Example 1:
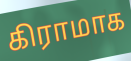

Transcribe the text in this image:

கிராமாக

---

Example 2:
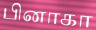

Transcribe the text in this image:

பினாகா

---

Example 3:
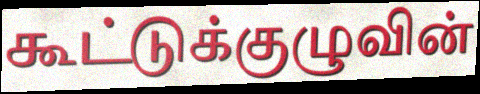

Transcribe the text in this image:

கூட்டுக்குழுவின்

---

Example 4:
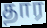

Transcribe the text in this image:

தார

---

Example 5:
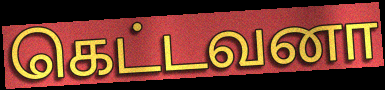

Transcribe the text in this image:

கெட்டவனா